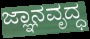
ಜ್ಞಾನವೃದ್ಧ